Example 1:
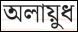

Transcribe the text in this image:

অলায়ুধ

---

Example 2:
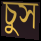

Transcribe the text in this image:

চুস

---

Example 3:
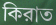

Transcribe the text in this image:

কিরাত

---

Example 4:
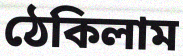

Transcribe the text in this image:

ঠেকিলাম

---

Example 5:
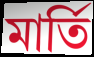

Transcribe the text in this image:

মার্তি